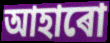
আহাৰো